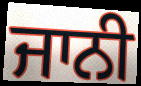
ਜਾਨੀ